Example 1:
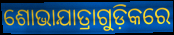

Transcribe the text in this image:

ଶୋଭାଯାତ୍ରାଗୁଡ଼ିକରେ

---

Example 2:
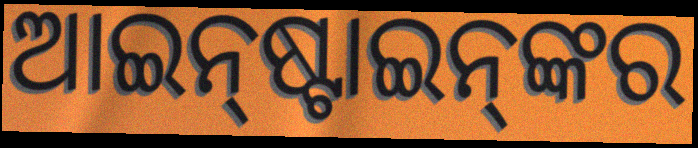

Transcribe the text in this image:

ଆଇନ୍‌ଷ୍ଟାଇନ୍‌ଙ୍କର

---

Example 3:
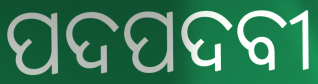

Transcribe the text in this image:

ପଦପଦବୀ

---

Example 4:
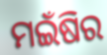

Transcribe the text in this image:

ମଇଁଷିର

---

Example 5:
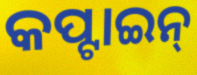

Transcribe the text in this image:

କପ୍ଟାଇନ୍